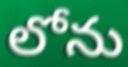
లోను